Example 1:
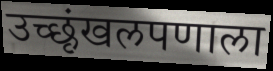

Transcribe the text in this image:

उच्छृंखलपणाला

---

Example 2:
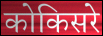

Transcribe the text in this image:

कोकिसरे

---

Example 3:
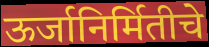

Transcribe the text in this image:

ऊर्जानिर्मितीचे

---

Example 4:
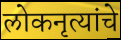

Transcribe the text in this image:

लोकनृत्यांचे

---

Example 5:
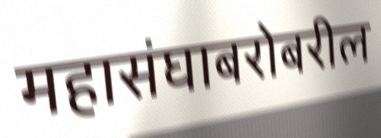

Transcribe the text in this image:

महासंघाबरोबरील